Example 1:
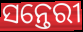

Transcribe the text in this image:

ସନ୍ତେରୀ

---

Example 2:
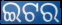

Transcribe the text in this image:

ଇଟର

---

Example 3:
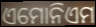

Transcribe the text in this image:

ଏମୋନିଏମ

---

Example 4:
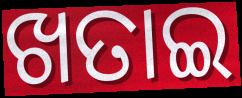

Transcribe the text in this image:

ଖତାଇ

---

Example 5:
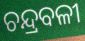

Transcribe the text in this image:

ଚନ୍ଦ୍ରବଳୀ